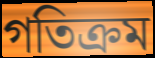
গতিক্রম